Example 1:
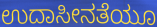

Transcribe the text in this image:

ಉದಾಸೀನತೆಯೂ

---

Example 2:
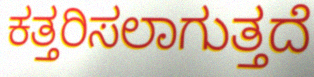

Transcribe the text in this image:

ಕತ್ತರಿಸಲಾಗುತ್ತದೆ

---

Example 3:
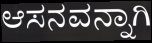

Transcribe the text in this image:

ಆಸನವನ್ನಾಗಿ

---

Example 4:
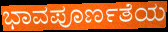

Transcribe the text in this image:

ಭಾವಪೂರ್ಣತೆಯ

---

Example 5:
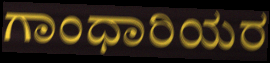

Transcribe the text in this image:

ಗಾಂಧಾರಿಯರ